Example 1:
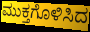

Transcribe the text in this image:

ಮುಕ್ತಗೊಳಿಸಿದ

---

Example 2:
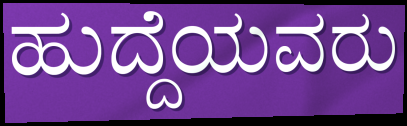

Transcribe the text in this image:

ಹುದ್ದೆಯವರು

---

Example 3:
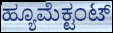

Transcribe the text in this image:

ಹ್ಯೂಮೆಕ್ಟಂಟ್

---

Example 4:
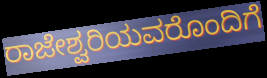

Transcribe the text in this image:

ರಾಜೇಶ್ವರಿಯವರೊಂದಿಗೆ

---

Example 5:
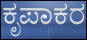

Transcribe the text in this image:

ಕೃಪಾಕರ